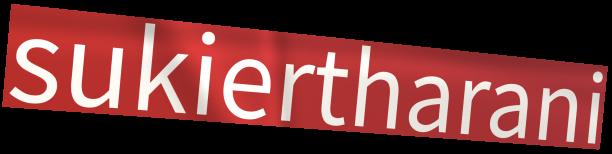
sukiertharani